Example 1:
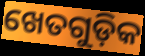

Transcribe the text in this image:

ଖେତଗୁଡ଼ିକ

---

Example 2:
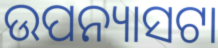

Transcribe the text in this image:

ଉପନ୍ୟାସଟା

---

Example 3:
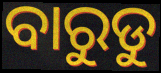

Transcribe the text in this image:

ବାରୁଡୁ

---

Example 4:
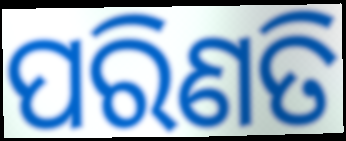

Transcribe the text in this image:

ପରିଣତି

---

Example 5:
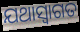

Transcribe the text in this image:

ଯଥାସ୍ଵାଗତ